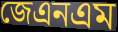
জেএনএম